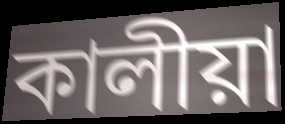
কালীয়া